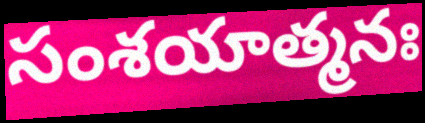
సంశయాత్మనః